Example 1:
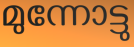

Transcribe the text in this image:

മുന്നോട്ടു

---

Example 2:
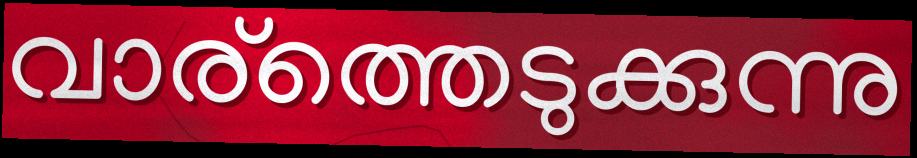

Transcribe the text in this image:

വാര്ത്തെടുക്കുന്നു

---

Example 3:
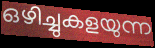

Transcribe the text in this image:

ഒഴിച്ചുകളയുന്ന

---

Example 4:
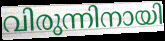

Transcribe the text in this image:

വിരുന്നിനായി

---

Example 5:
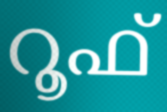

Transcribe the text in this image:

റൂഫ്